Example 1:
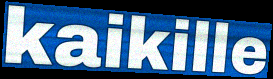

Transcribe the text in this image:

kaikille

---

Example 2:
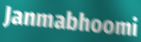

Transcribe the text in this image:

Janmabhoomi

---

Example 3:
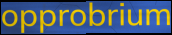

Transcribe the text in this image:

opprobrium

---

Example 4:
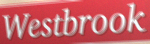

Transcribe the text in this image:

Westbrook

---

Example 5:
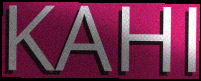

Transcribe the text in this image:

KAHI